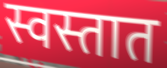
स्वस्तात